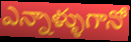
ఎన్నాళ్ళుగానో